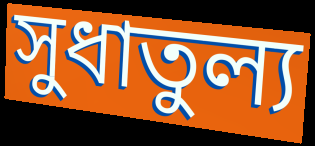
সুধাতুল্য